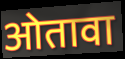
ओतावा